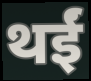
थईं